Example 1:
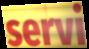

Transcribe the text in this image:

servi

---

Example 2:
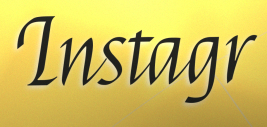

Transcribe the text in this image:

Instagr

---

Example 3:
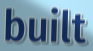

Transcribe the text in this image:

built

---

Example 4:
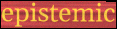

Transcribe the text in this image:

epistemic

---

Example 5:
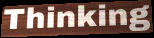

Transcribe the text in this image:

Thinking